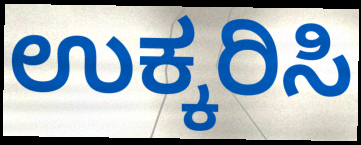
ಉಕ್ಕರಿಸಿ